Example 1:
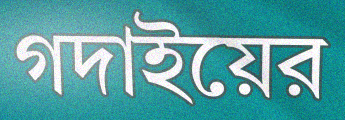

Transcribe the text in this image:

গদাইয়ের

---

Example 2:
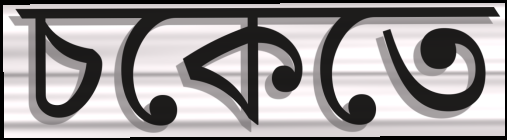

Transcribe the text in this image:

চকেতে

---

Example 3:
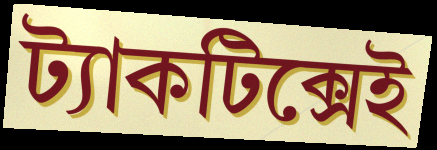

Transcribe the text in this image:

ট্যাকটিক্সেই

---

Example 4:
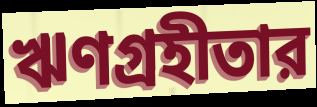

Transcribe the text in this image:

ঋণগ্রহীতার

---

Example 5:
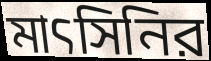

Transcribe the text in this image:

মাৎসিনির